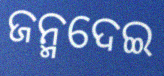
ଜନ୍ମଦେଇ